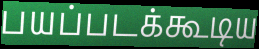
பயப்படக்கூடிய